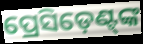
ପ୍ରେସିଡ଼େଣ୍ଟ୍‍ଙ୍କ